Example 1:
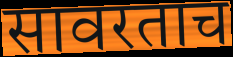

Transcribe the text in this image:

सावरताच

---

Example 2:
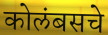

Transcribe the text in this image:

कोलंबसचे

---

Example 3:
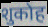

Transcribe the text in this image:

शुकोह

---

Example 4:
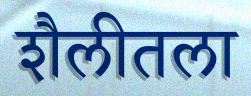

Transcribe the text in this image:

शैलीतला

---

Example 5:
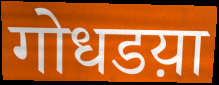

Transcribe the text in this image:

गोधडय़ा